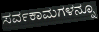
ಸರ್ವಕಾಮಗಳನ್ನೂ